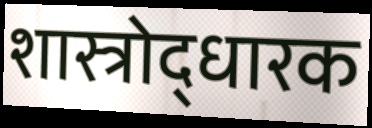
शास्त्रोद्धारक